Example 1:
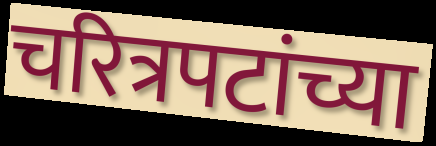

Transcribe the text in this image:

चरित्रपटांच्या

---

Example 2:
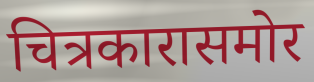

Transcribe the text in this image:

चित्रकारासमोर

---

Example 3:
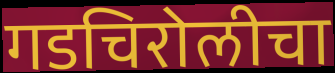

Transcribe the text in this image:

गडचिरोलीचा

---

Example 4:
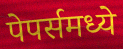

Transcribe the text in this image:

पेपर्समध्ये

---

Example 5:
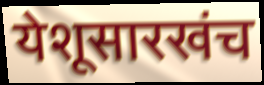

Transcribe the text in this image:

येशूसारखंच